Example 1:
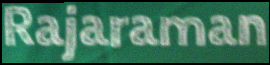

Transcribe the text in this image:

Rajaraman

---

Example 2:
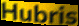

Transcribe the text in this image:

Hubris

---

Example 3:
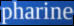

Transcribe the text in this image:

pharine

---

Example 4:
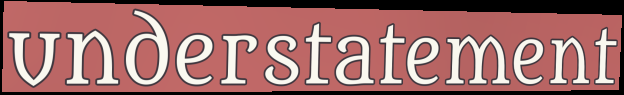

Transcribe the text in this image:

understatement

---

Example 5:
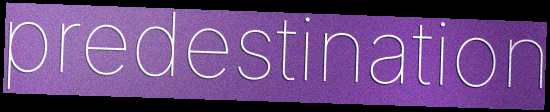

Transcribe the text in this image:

predestination